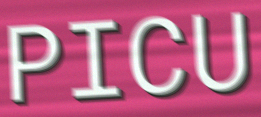
PICU